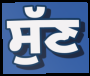
ਸੁੱਣ